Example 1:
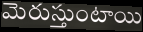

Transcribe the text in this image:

మెరుస్తుంటాయి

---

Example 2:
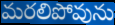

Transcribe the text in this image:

మరలిపోవును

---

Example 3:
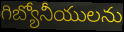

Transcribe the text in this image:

గిబ్యోనీయులను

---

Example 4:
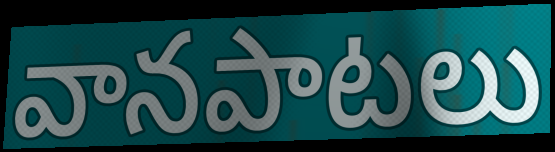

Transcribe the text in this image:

వానపాటలు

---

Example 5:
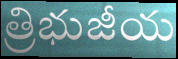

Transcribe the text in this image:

త్రిభుజీయ